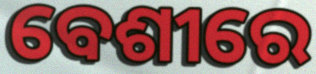
ବେଶୀରେ